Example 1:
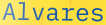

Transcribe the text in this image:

Alvares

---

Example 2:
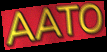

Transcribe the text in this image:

AATO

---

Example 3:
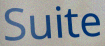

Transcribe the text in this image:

Suite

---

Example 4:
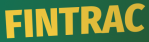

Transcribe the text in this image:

FINTRAC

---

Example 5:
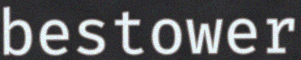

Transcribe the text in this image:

bestower